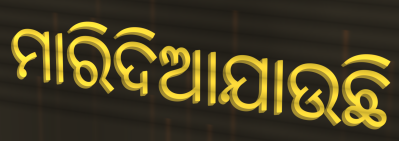
ମାରିଦିଆଯାଉଛି